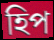
হিপ